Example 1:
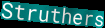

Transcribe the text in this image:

Struthers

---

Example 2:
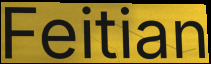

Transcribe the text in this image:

Feitian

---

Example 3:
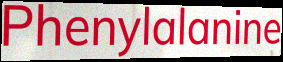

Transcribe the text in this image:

Phenylalanine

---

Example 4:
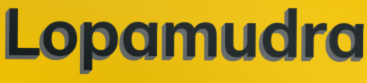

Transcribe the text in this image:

Lopamudra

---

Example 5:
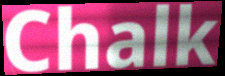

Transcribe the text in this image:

Chalk